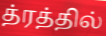
த்ரத்தில்